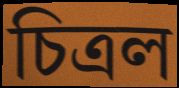
চিত্ৰল